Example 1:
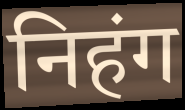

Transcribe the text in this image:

निहंग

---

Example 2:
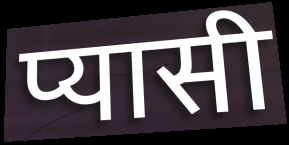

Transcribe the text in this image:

प्यासी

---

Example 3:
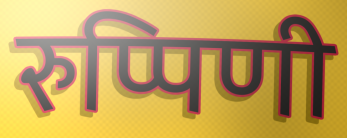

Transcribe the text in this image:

रुप्पिणी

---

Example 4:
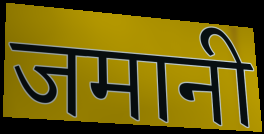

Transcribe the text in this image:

जमानी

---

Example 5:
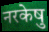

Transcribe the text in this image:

नरकेषु